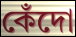
কেঁদো